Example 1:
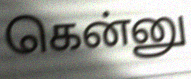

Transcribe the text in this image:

கென்னு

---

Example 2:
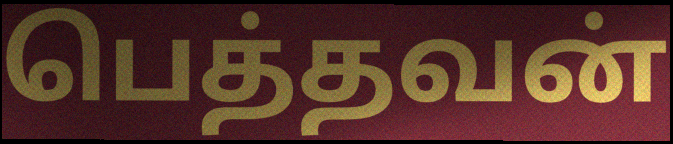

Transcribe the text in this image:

பெத்தவன்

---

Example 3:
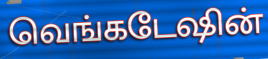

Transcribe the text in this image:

வெங்கடேஷின்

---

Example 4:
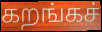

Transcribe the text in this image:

கறங்கச்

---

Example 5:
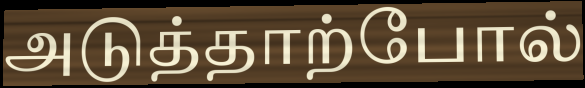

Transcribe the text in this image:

அடுத்தாற்போல்